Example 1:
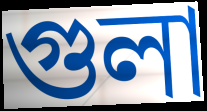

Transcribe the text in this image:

গুলা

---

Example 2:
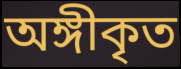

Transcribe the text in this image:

অঙ্গীকৃত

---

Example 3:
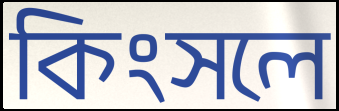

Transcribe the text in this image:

কিংসলে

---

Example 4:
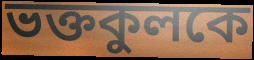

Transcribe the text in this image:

ভক্তকুলকে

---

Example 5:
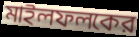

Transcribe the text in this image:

মাইলফলকের